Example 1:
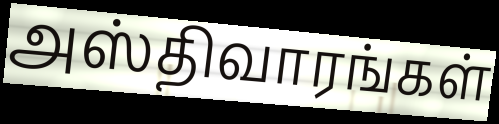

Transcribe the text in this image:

அஸ்திவாரங்கள்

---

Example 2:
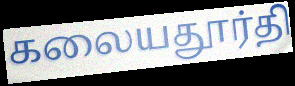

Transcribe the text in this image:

கலையதூர்தி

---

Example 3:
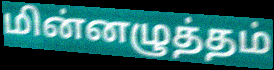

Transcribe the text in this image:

மின்னழுத்தம்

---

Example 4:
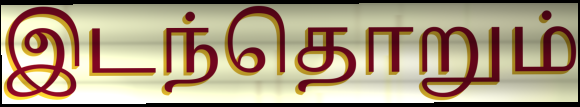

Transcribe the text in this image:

இடந்தொறும்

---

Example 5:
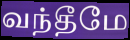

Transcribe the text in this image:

வந்தீமே